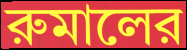
রুমালের